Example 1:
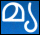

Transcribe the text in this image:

മ്യ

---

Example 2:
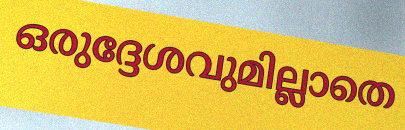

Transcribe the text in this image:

ഒരുദ്ദേശവുമില്ലാതെ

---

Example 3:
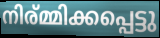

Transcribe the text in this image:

നിര്മ്മിക്കപ്പെട്ടു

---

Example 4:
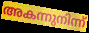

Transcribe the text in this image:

അകന്നുനിന്ന്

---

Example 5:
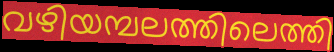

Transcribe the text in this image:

വഴിയമ്പലത്തിലെത്തി